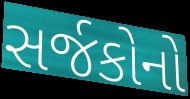
સર્જકોનો